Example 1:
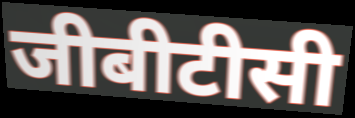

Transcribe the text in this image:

जीबीटीसी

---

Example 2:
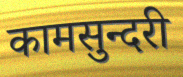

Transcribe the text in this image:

कामसुन्दरी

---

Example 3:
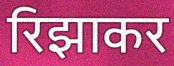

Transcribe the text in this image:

रिझाकर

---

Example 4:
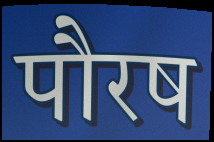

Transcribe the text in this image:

पौरष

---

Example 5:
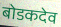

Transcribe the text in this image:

बोडकदेव